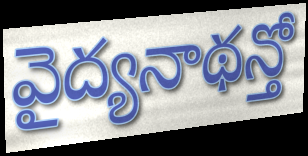
వైద్యనాథన్తో